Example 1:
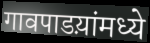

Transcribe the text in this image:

गावपाडय़ांमध्ये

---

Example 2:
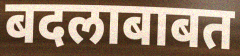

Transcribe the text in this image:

बदलाबाबत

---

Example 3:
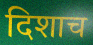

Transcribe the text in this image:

दिशाच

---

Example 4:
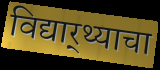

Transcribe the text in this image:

विद्यार्थ्याचा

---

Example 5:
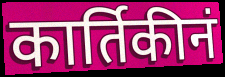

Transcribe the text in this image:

कार्तिकीनं